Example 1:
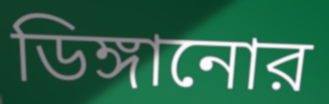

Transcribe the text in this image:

ডিঙ্গানোর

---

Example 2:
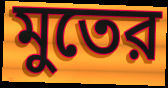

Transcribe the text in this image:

মুতের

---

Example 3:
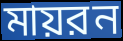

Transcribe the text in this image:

মায়রন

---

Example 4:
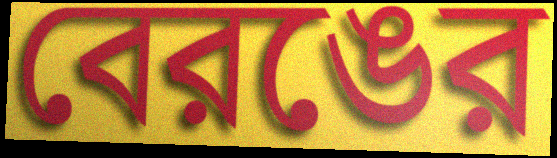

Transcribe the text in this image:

বেরঙের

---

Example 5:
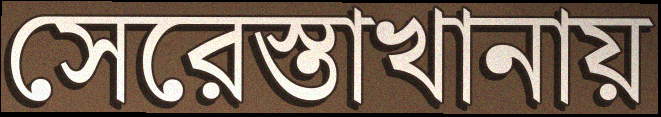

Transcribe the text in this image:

সেরেস্তাখানায়